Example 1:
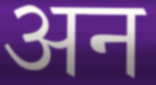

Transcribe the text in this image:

अन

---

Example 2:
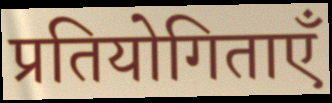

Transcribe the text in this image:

प्रतियोगिताएँ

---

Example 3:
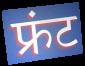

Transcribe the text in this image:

फ्रंट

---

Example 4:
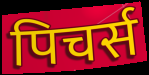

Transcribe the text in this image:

पिचर्स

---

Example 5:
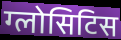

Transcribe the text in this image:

ग्लोसिटिस